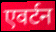
एवर्टन